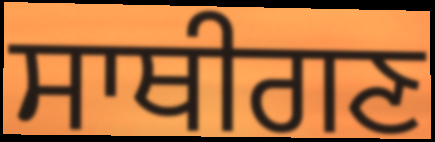
ਸਾਥੀਗਣ